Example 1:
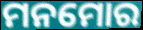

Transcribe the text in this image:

ମନମୋର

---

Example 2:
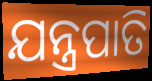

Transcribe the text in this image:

ଯନ୍ତ୍ରପାତି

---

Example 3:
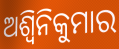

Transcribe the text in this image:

ଅଶ୍ୱିନିକୁମାର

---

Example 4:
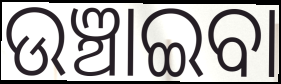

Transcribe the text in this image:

ଉଞ୍ଚାଇବା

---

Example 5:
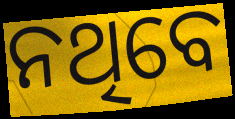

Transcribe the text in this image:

ନଥିବେ